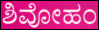
ಶಿವೋಹಂ